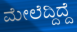
ಮೇಲೆದ್ದಿದ್ದೆ